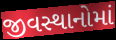
જીવસ્થાનોમાં